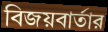
বিজয়বার্তার